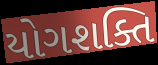
યોગશક્તિ